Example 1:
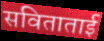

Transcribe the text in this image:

सविताताई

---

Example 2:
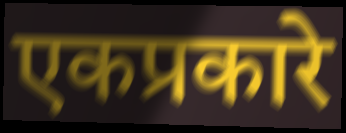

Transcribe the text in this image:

एकप्रकारे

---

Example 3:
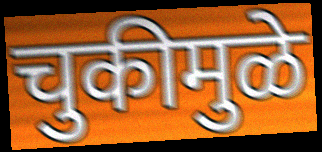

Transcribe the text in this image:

चुकीमुळे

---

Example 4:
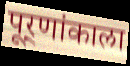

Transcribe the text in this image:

पूर्णांकाला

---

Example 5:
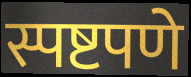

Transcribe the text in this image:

स्पष्टपणे